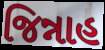
જિન્નાહ